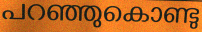
പറഞ്ഞുകൊണ്ടു